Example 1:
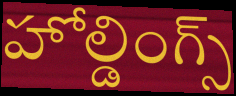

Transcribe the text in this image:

హోల్డింగ్స్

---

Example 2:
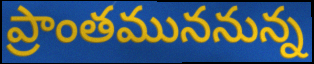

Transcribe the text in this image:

ప్రాంతముననున్న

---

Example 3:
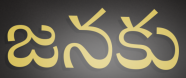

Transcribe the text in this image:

జనకు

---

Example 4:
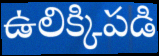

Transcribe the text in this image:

ఉలిక్కిపడి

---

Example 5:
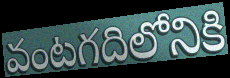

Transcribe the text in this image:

వంటగదిలోనికి